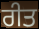
ਰੀਤ